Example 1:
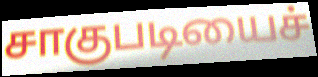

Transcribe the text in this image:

சாகுபடியைச்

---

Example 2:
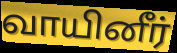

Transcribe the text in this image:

வாயினீர்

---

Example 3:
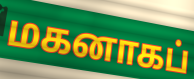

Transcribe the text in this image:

மகனாகப்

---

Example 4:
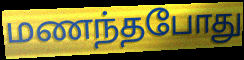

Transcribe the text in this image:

மணந்தபோது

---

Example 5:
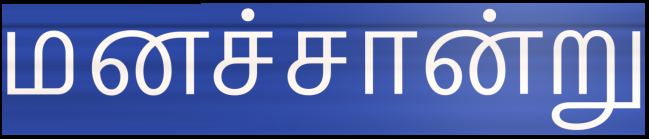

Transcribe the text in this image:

மனச்சான்று